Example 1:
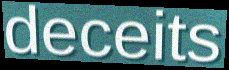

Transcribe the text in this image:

deceits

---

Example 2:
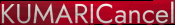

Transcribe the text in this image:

KUMARICancel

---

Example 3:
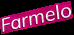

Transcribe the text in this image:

Farmelo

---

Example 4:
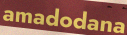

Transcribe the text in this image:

amadodana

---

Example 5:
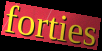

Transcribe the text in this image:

forties